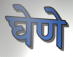
घेणे